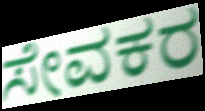
ಸೇವಕರ